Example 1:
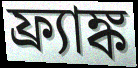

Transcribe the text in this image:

ফ্র্যাঙ্ক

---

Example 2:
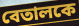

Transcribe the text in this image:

বেতালকে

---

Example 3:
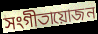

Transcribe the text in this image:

সংগীতায়োজন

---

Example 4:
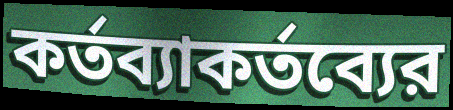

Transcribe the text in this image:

কর্তব্যাকর্তব্যের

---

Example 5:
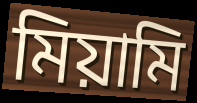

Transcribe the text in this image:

মিয়ামি